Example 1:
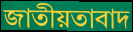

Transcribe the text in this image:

জাতীয়তাবাদ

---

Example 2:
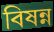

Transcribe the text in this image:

বিষন্ন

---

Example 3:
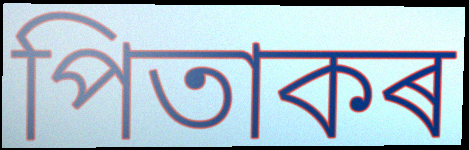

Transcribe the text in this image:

পিতাকৰ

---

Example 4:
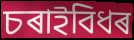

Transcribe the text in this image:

চৰাইবিধৰ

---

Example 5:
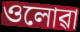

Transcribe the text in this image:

ওলোৱা